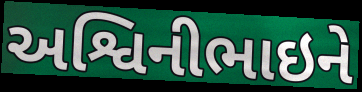
અશ્વિનીભાઇને